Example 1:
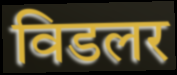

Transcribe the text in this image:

विडलर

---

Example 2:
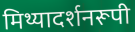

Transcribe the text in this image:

मिथ्यादर्शनरूपी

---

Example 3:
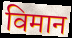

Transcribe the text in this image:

विमान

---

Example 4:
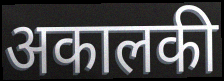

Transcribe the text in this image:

अकालकी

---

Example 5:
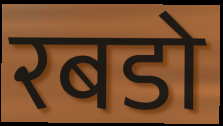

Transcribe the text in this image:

रबडो